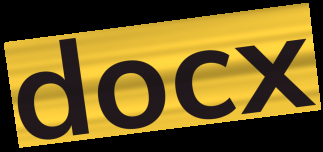
docx